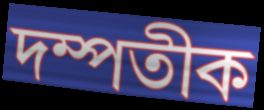
দম্পতীক